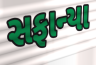
સફાન્યા